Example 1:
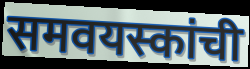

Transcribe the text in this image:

समवयस्कांची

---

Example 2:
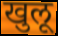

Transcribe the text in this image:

खुलू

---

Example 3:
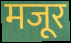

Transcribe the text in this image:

मजूर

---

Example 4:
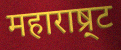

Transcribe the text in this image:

महाराष्र्ट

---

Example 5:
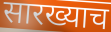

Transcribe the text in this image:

सारख्याच